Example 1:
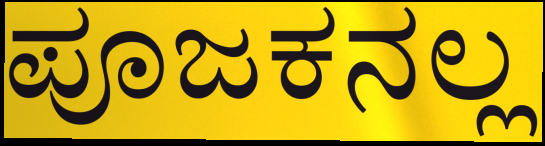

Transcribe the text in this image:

ಪೂಜಕನಲ್ಲ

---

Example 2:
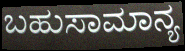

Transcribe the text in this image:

ಬಹುಸಾಮಾನ್ಯ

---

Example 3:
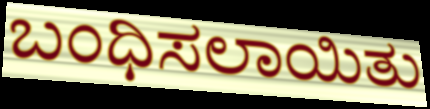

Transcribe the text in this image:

ಬಂಧಿಸಲಾಯಿತು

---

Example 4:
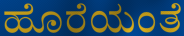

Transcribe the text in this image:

ಹೊರೆಯಂತೆ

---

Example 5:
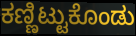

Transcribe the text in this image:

ಕಣ್ಣಿಟ್ಟುಕೊಂಡು